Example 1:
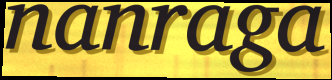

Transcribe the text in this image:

nanraga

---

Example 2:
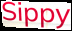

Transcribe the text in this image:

Sippy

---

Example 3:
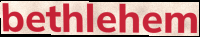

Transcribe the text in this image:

bethlehem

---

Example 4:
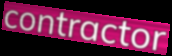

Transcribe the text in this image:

contractor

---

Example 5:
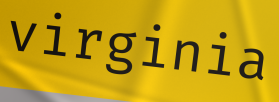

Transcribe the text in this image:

virginia